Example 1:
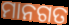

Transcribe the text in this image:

ମାନଗତ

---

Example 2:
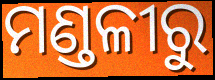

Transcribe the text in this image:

ମଣ୍ଡଳୀରୁ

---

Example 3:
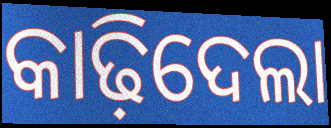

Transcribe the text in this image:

କାଢ଼ିଦେଲା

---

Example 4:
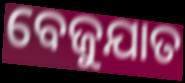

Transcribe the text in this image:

ବେଜୁଯାତ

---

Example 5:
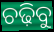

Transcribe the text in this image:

ଚଢ଼ିବୁ